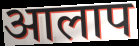
आलाप